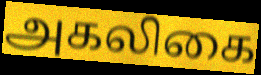
அகலிகை